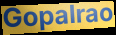
Gopalrao